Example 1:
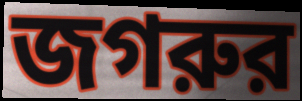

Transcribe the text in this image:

জগরুর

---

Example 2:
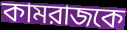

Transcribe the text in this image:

কামরাজকে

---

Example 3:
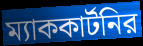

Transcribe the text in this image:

ম্যাককার্টনির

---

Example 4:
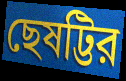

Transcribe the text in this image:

ছেষট্টির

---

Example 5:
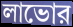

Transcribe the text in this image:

লাভোর